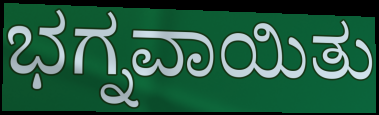
ಭಗ್ನವಾಯಿತು